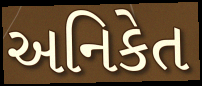
અનિકેત